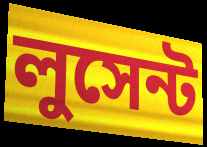
লুসেন্ট